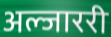
अल्जाररी